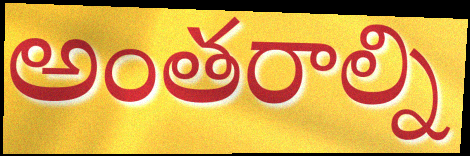
అంతరాల్ని